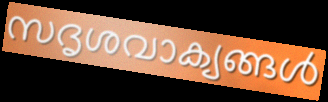
സദൃശവാക്യങ്ങൾ